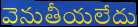
వెనుతీయలేదు